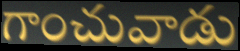
గాంచువాడు